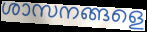
ശാസനങ്ങളെ